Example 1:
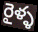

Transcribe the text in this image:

రైళ్ళ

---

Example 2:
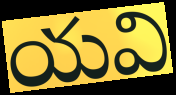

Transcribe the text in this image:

యవి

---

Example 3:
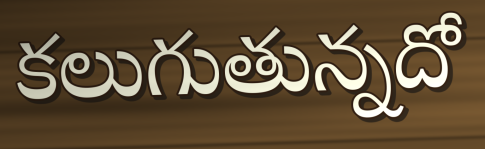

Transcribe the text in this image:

కలుగుతున్నదో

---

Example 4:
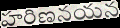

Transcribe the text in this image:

హరిణనయన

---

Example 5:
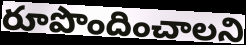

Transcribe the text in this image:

రూపొందించాలని